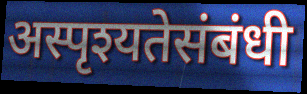
अस्पृश्यतेसंबंधी